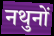
नथुनों